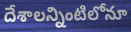
దేశాలన్నింటిలోనూ